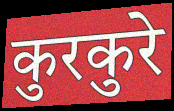
कुरकुरे